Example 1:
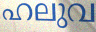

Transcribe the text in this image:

ഹലുവ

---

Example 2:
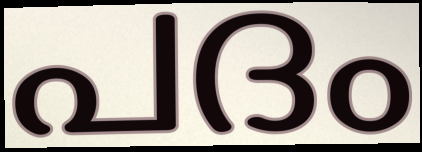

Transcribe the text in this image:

പദം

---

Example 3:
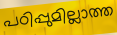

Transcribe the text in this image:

പഠിപ്പുമില്ലാത്ത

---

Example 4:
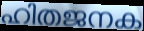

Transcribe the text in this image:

ഹിതജനക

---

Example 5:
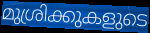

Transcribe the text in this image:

മുശ്രിക്കുകളുടെ